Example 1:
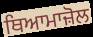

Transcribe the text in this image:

ਥਿਆਮਾਜ਼ੋਲ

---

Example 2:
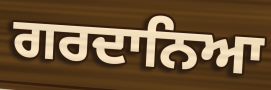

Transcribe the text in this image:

ਗਰਦਾਨਿਆ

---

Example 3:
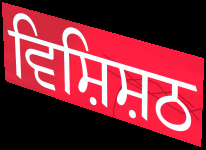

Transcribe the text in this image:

ਵਿਸ਼ਿਸ਼ਠ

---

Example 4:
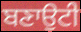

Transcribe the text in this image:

ਬਣਾਉਟੀ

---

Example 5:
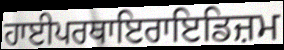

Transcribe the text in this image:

ਹਾਈਪਰਥਾਇਰਾਇਡਿਜ਼ਮ